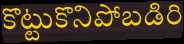
కొట్టుకొనిపోబడిరి